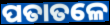
ପତାତଳେ